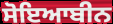
ਸੋਇਆਬੀਨ